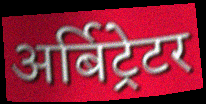
अर्बिट्रेटर